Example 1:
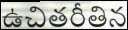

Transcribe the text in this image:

ఉచితరీతిన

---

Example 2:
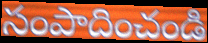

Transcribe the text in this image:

సంపాదించండి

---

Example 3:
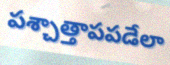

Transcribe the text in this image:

పశ్చాత్తాపపడేలా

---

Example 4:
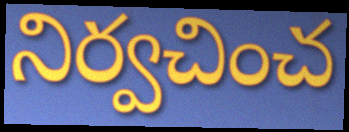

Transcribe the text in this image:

నిర్వచించ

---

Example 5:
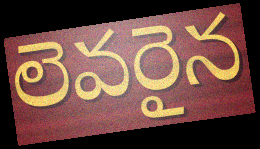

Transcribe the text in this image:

లెవరైన